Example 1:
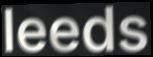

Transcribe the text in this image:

leeds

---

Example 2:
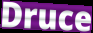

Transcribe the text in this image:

Druce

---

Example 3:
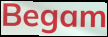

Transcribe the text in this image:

Begam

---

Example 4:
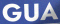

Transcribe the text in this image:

GUA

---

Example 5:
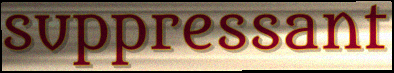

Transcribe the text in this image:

suppressant